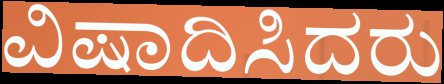
ವಿಷಾದಿಸಿದರು